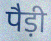
पैड़ी